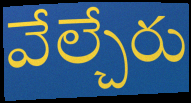
వేల్చేరు